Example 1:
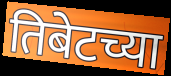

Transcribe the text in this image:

तिबेटच्या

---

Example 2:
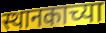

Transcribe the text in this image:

स्थानकाच्या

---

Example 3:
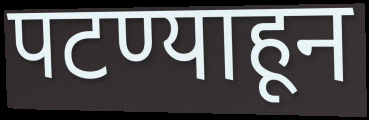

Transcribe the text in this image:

पटण्याहून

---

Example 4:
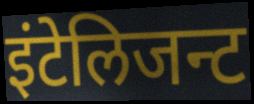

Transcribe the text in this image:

इंटेलिजन्ट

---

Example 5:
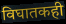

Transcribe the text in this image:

विघातकही